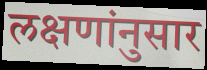
लक्षणांनुसार